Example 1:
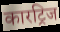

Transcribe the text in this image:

कारट्रिज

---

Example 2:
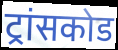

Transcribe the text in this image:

ट्रांसकोड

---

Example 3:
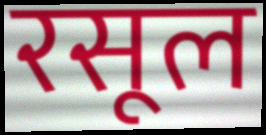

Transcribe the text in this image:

रसूल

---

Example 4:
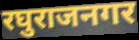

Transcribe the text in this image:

रघुराजनगर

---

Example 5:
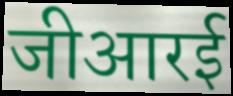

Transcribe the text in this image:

जीआरई